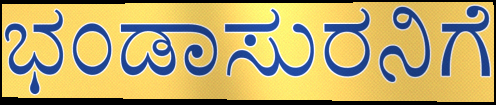
ಭಂಡಾಸುರನಿಗೆ